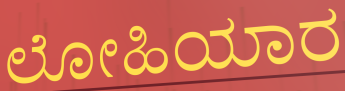
ಲೋಹಿಯಾರ